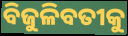
ବିଜୁଳିବତୀକୁ